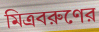
মিত্রবরুণের